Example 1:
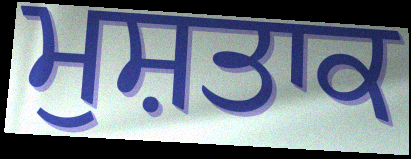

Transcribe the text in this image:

ਮੁਸ਼ਤਾਕ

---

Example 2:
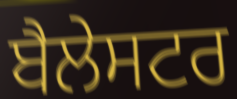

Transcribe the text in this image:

ਬੈਲੇਸਟਰ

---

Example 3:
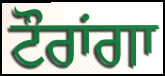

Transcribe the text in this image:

ਟੌਰਾਂਗਾ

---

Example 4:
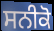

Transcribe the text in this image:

ਸਨੀਕੋ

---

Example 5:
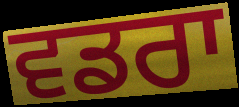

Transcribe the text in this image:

ਵਡਰਾ